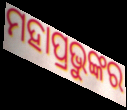
ମହାପ୍ରଭୁଙ୍କର